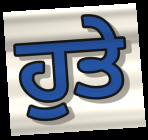
ਹੁਤੇ